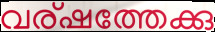
വര്ഷത്തേക്കു